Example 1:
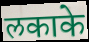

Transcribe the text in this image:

लकाके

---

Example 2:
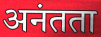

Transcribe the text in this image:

अनंतता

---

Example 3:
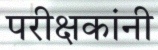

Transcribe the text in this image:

परीक्षकांनी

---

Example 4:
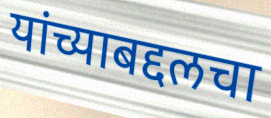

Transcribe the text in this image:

यांच्याबद्दलचा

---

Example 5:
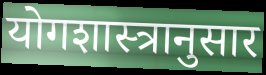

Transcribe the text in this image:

योगशास्त्रानुसार